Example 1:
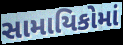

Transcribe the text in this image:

સામાયિકોમાં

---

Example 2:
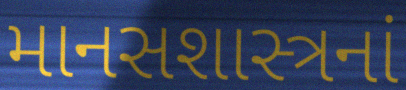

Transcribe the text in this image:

માનસશાસ્ત્રનાં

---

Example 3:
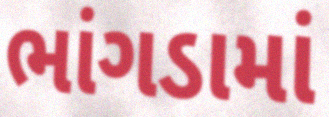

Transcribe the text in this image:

ભાંગડામાં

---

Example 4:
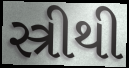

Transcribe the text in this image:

સ્ત્રીથી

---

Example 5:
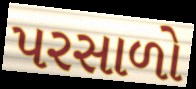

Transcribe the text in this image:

પરસાળો